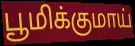
பூமிக்குமாய்